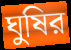
ঘুষির